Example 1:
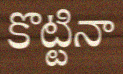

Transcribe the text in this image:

కొట్టినా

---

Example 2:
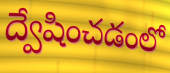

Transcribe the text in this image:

ద్వేషించడంలో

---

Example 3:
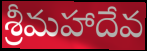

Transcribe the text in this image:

శ్రీమహాదేవ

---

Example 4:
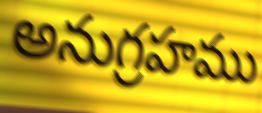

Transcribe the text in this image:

అనుగ్రహము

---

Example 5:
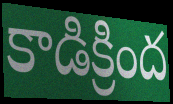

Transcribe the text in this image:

కాడిక్రింద